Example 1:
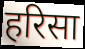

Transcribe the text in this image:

हरिसा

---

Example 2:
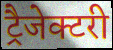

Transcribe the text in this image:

ट्रैजेक्टरी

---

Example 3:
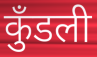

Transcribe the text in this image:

कुँडली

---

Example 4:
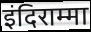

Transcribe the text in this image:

इंदिराम्मा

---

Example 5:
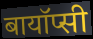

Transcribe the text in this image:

बायॉप्सी